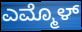
ಎಮ್ಮೊಳ್